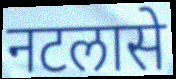
नटलासे